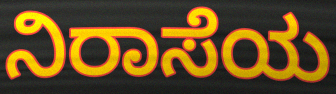
ನಿರಾಸೆಯ